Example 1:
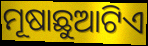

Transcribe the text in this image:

ମୂଷାଛୁଆଟିଏ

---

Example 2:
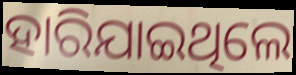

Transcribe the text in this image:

ହାରିଯାଇଥିଲେ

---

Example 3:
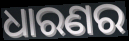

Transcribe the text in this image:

ଧାରଣର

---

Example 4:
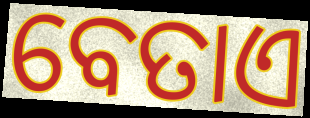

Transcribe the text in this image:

ବେତାଏ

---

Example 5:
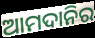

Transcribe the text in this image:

ଆମଦାନିର